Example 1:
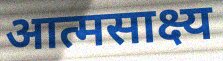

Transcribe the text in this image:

आत्मसाक्ष्य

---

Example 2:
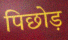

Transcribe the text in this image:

पिछोड़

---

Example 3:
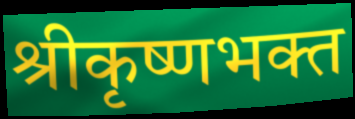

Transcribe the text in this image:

श्रीकृष्णभक्त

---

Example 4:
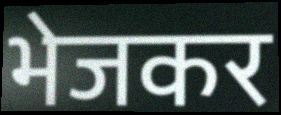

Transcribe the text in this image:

भेजकर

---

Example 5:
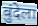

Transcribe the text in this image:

बुंदेला